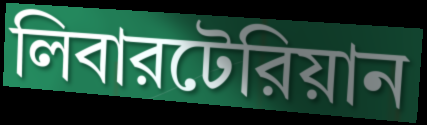
লিবারটেরিয়ান